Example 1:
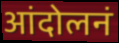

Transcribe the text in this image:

आंदोलनं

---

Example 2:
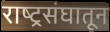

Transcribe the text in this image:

राष्ट्रसंघातून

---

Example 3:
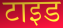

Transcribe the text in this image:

टाइड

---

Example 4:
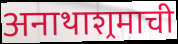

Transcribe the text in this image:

अनाथाश्रमाची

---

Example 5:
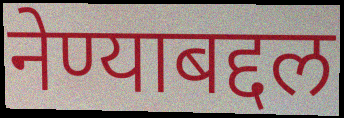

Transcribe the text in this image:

नेण्याबद्दल